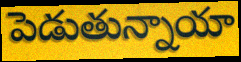
పెడుతున్నాయా